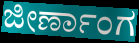
ಜೀರ್ಣಾಂಗ